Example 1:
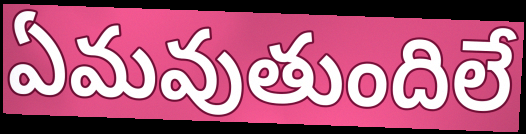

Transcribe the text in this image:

ఏమవుతుందిలే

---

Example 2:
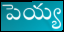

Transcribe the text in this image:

పెయ్య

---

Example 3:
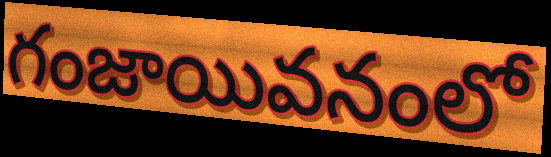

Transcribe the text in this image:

గంజాయివనంలో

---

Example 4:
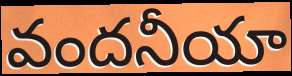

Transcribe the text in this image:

వందనీయా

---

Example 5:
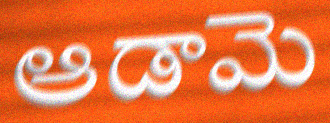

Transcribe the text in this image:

ఆడామె